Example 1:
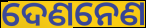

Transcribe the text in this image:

ଦେଣନେଣ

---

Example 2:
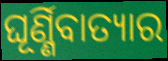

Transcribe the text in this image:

ଘୂର୍ଣ୍ଣିବାତ୍ୟାର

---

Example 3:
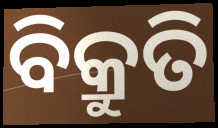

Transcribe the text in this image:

ବିକ୍ରୁତି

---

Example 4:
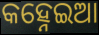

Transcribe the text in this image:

କହ୍ନେଇଆ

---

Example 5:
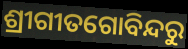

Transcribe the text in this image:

ଶ୍ରୀଗୀତଗୋବିନ୍ଦରୁ